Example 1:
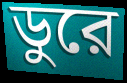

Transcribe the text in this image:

ডুরে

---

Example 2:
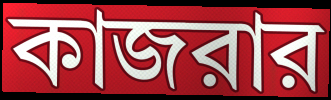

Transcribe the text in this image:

কাজরার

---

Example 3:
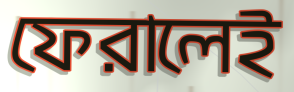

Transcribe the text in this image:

ফেরালেই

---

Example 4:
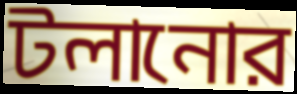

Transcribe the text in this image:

টলানোর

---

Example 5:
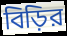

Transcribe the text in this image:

বিড়ির